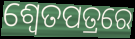
ଶ୍ଵେତପତ୍ରରେ